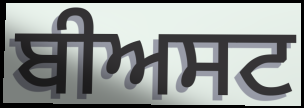
ਬੀਅਸਟ